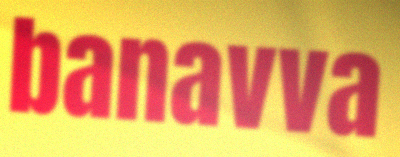
banavva